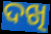
ଦଖି